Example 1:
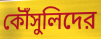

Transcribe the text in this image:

কৌঁসুলিদের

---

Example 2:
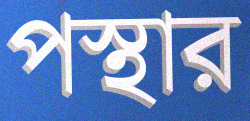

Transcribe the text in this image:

পস্থার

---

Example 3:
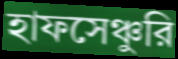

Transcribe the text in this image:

হাফসেঞ্চুরি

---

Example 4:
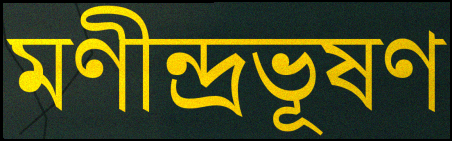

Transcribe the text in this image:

মণীন্দ্রভূষণ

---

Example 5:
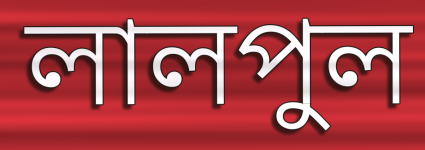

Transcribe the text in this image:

লালপুল